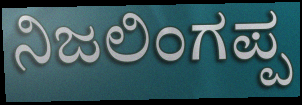
ನಿಜಲಿಂಗಪ್ಪ